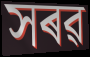
সৰৱ